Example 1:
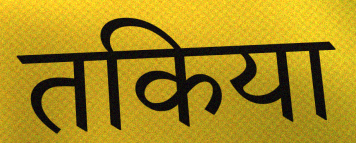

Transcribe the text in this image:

तकिया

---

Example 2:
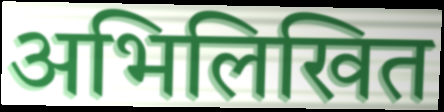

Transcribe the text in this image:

अभिलिखित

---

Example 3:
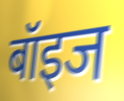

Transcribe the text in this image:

बॉइज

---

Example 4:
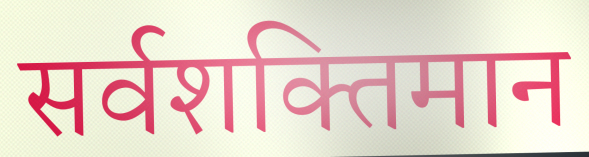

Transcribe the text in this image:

सर्वशक्‍तिमान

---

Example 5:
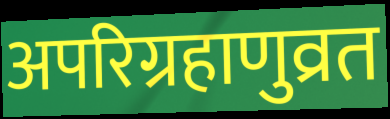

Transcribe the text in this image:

अपरिग्रहाणुव्रत